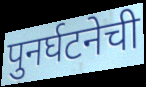
पुनर्घटनेची